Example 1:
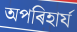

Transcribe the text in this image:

অপৰিহাৰ্য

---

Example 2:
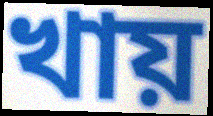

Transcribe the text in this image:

খায়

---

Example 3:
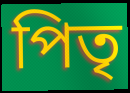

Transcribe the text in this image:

পিতৃ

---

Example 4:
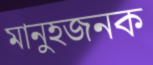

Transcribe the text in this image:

মানুহজনক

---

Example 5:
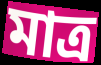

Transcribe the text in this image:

মাত্ৰ